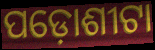
ପଡ଼ୋଶୀଟା